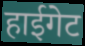
हाईगेट